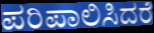
ಪರಿಪಾಲಿಸಿದರೆ